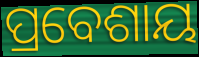
ପ୍ରବେଶାୟ